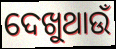
ଦେଖୁଥାଉଁ